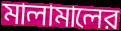
মালামালের